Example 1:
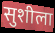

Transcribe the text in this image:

सुशीला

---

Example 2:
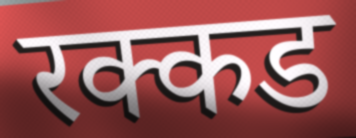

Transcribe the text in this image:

रक्कड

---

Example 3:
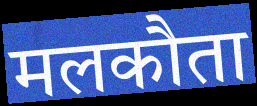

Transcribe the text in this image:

मलकौता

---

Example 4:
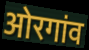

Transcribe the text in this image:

ओरगांव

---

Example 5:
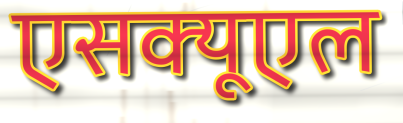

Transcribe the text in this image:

एसक्यूएल